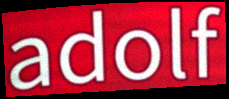
adolf